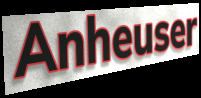
Anheuser